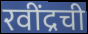
रवींद्रची